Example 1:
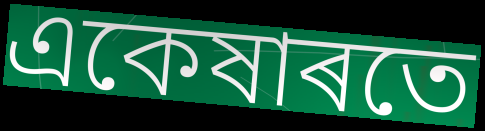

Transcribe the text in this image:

একেষাৰতে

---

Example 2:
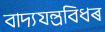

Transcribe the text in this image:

বাদ্যযন্ত্ৰবিধৰ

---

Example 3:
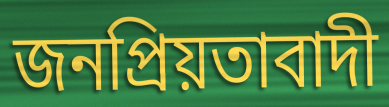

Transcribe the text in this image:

জনপ্ৰিয়তাবাদী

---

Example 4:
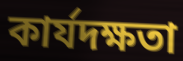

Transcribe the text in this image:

কাৰ্যদক্ষতা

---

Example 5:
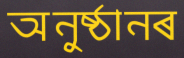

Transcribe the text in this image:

অনুষ্ঠানৰ